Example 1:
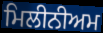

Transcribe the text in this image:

ਮਿਲੀਨੀਅਮ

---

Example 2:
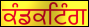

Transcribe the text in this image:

ਕੰਡਕਟਿੰਗ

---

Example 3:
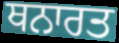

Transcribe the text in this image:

ਥਨਾਰਤ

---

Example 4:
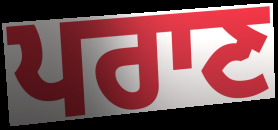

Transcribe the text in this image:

ਪਰਾਣ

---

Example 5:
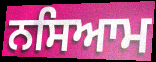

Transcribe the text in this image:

ਨਸਿਆਮ